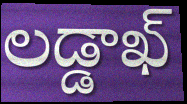
లడ్డాఖ్